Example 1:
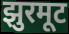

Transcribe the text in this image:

झुरमूट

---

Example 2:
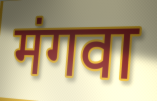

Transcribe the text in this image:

मंगवा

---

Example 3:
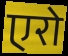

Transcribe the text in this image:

एरो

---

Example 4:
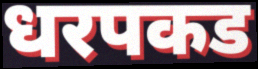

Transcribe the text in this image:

धरपकड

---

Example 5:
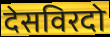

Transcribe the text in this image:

देसविरदो